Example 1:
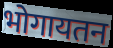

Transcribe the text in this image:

भोगायतन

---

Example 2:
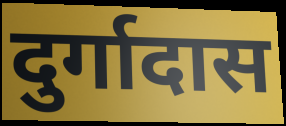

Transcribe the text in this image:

दुर्गादास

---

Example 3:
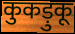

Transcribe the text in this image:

कुकड़ुकू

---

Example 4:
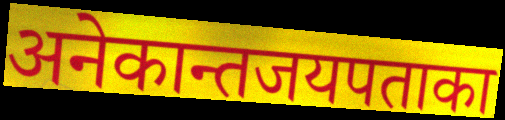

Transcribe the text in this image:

अनेकान्तजयपताका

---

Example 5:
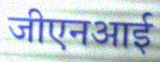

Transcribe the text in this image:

जीएनआई